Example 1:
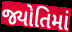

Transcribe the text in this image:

જ્યોતિમાં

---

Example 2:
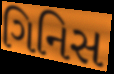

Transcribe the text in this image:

ગિનિસ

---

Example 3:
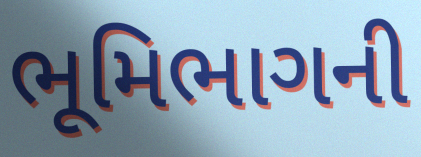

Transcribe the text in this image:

ભૂમિભાગની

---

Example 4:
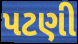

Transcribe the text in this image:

પટણી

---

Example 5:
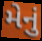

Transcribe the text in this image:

મેનું